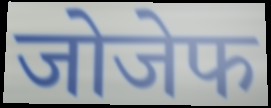
जोजेफ